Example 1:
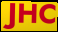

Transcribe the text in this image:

JHC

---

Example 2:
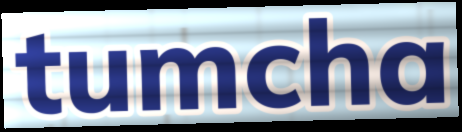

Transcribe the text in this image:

tumcha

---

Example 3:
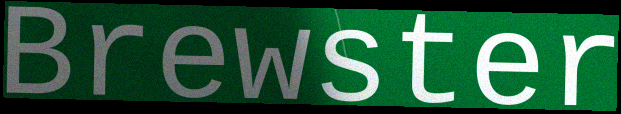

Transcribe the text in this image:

Brewster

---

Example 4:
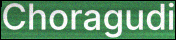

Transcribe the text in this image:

Choragudi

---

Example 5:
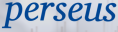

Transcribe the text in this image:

perseus